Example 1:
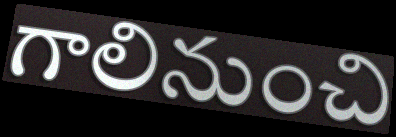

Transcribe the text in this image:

గాలినుంచి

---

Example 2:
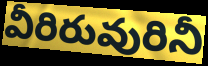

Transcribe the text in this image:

వీరిరువురినీ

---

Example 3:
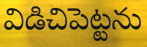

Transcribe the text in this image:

విడిచిపెట్టను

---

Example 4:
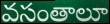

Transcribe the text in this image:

వసంతాలూ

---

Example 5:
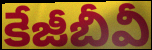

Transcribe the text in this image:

కేజీబీవీ